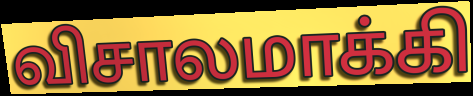
விசாலமாக்கி